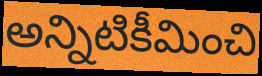
అన్నిటికీమించి